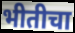
भीतीचा